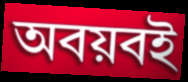
অবয়বই